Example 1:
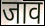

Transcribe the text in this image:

जाव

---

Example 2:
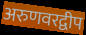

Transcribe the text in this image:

अरुणवरद्वीप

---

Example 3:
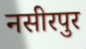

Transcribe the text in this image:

नसीरपुर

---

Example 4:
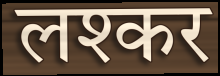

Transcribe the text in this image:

लश्‍कर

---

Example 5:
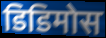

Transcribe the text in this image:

डिडिमोस